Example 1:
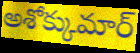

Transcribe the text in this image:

అశోక్కుమార్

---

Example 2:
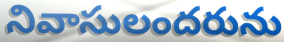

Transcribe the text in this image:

నివాసులందరును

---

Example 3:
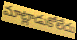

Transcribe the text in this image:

మాట్లాడుకోలేదు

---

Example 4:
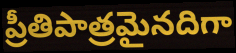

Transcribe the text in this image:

ప్రీతిపాత్రమైనదిగా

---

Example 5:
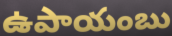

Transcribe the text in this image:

ఉపాయంబు